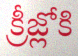
క్రీజ్లోకి